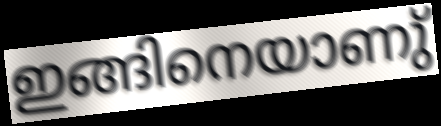
ഇങ്ങിനെയാണു്